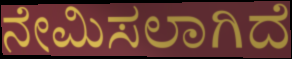
ನೇಮಿಸಲಾಗಿದೆ